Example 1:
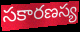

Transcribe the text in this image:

సకారణస్య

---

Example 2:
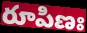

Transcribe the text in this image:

రూపిణః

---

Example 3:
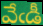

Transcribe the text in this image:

వేఁడీ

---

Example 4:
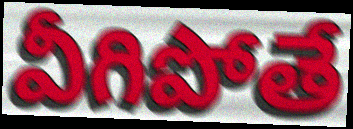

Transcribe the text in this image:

వీగిపోతే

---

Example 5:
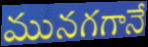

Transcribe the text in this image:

మునగగానే